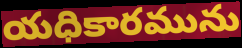
యధికారమును